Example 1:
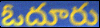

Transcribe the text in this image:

ఓదూరు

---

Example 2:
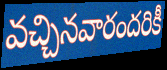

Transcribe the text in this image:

వచ్చినవారందరికీ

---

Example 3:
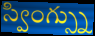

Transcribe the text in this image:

స్వింగ్స్ను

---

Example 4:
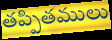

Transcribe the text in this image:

తప్పితములు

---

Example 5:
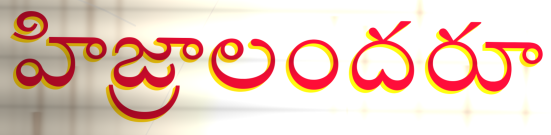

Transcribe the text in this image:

హిజ్రాలందరూ